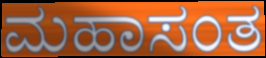
ಮಹಾಸಂತ